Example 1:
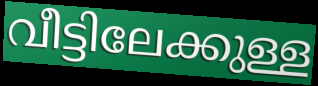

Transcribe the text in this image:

വീട്ടിലേക്കുള്ള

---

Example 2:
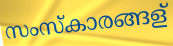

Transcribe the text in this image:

സംസ്കാരങ്ങള്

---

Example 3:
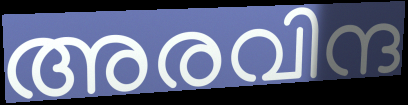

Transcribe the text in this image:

അരവിന്ദ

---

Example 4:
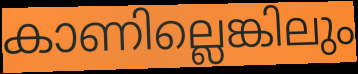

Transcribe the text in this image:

കാണില്ലെങ്കിലും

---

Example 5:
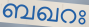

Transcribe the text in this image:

ബഖറഃ